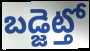
బడ్జెట్తో